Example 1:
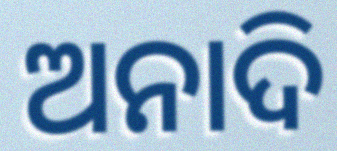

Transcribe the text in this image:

ଅନାଦି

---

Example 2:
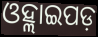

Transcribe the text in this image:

ଓହ୍ଲାଇପଡ଼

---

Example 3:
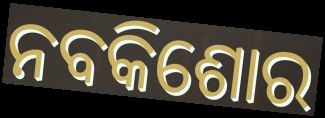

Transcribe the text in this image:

ନବକିଶୋର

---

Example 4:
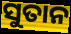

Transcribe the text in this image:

ସୁତାନ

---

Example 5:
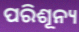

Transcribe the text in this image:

ପରିଶୂନ୍ୟ